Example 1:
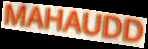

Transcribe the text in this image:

MAHAUDD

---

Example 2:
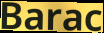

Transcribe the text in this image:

Barac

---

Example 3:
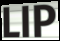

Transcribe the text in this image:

LIP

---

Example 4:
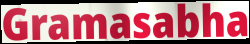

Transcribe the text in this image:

Gramasabha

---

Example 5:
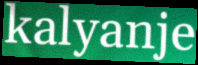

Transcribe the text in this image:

kalyanje